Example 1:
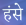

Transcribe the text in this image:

हंसे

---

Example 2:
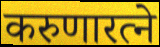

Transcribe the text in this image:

करुणारत्ने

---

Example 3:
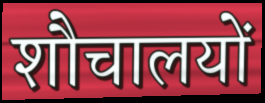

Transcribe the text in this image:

शौचालयों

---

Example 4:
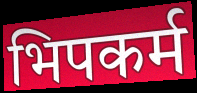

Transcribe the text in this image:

भिपकर्म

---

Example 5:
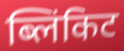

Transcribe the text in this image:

ब्लिंकिट